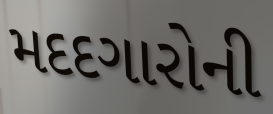
મદદગારોની